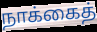
நாக்கைத்